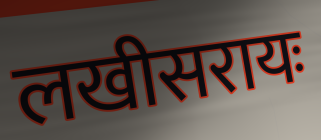
लखीसरायः